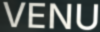
VENU